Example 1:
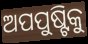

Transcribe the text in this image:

ଅପପୁଷ୍ଟିକୁ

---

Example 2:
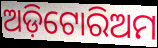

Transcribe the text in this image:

ଅଡ଼ିଟୋରିଅମ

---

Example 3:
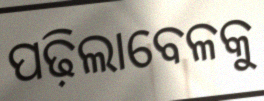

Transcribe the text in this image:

ପଢ଼ିଲାବେଳକୁ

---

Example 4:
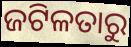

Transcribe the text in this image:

ଜଟିଳତାରୁ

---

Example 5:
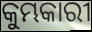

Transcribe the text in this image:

କୁମ୍ଭକାରୀ